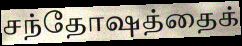
சந்தோஷத்தைக்